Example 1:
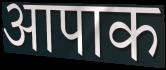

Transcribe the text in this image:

आपाक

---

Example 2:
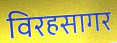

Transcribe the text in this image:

विरहसागर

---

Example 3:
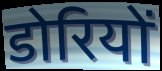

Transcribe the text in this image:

डोरियों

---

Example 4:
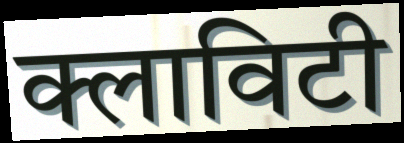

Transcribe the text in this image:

क्लाविटी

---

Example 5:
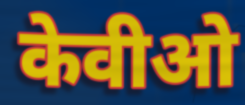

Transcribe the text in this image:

केवीओ